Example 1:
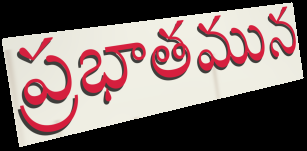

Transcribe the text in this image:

ప్రభాతమున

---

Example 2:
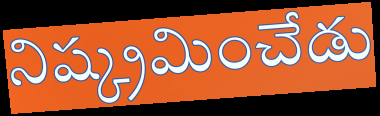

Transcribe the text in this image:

నిష్క్రమించేడు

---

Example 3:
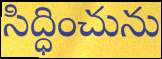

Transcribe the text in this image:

సిద్ధించును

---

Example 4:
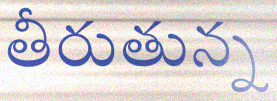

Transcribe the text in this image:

తీరుతున్న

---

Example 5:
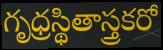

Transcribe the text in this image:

గృధ్రస్థితాస్త్రకరో